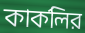
কার্কলির